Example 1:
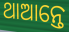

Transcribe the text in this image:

ଥାଆନ୍ତେ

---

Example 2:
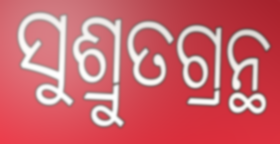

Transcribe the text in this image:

ସୁଶ୍ରୁତଗ୍ରନ୍ଥ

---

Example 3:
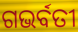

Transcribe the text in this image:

ଗଭର୍ବତୀ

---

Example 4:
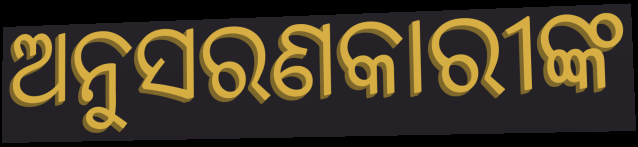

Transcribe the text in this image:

ଅନୁସରଣକାରୀଙ୍କ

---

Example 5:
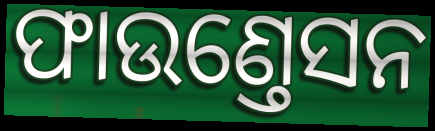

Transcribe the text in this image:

ଫାଉଣ୍ତେସନ